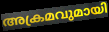
അക്രമവുമായി